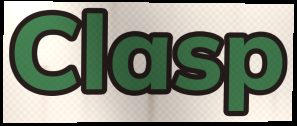
Clasp